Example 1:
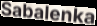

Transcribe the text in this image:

Sabalenka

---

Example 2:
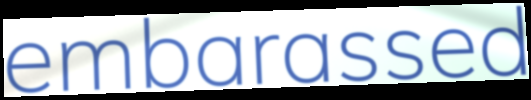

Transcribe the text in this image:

embarassed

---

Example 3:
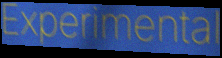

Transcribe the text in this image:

Experimental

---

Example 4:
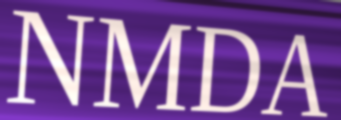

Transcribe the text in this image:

NMDA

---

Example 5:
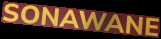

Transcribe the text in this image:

SONAWANE